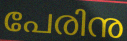
പേരിനു